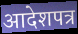
आदेशपत्र